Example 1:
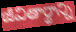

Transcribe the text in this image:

జీవితార్థాన్ని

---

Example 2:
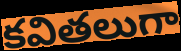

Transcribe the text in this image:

కవితలుగా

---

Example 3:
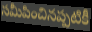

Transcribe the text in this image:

సమీపించినప్పటికీ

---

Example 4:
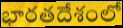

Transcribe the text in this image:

భారతదేశంలో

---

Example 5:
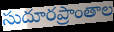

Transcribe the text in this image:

సుదూరప్రాంతాల